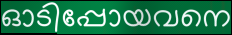
ഓടിപ്പോയവനെ